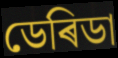
ডেৰিডা